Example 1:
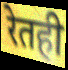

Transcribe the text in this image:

रेतही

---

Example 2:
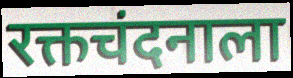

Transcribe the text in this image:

रक्तचंदनाला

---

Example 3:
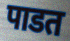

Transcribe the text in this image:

पाडत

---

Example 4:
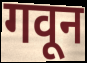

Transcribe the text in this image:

गवून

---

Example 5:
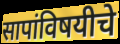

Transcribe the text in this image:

सापांविषयीचे